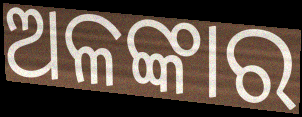
ଅଳଙ୍କାର